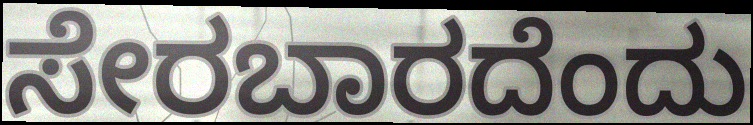
ಸೇರಬಾರದೆಂದು